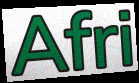
Afri